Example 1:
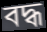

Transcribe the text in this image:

বদ্ধ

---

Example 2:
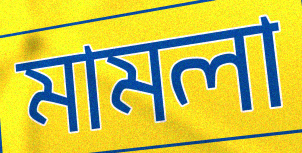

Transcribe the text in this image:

মামলা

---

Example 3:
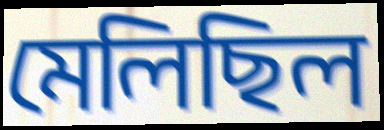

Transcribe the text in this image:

মেলিছিল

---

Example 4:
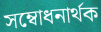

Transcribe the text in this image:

সম্বোধনাৰ্থক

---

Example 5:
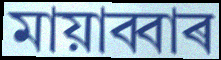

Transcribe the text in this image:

মায়াব্বাৰ